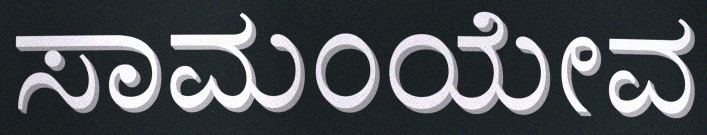
ಸಾಮಂಯೇವ